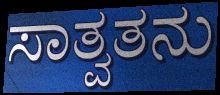
ಸಾತ್ವತನು